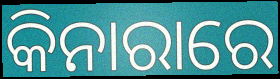
କିନାରାରେ